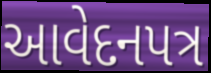
આવેદનપત્ર